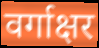
वर्गाक्षर